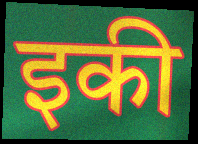
इकी